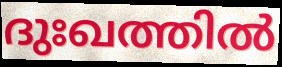
ദുഃഖത്തിൽ